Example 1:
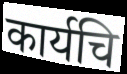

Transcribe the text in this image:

कार्यचि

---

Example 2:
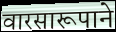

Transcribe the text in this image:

वारसारूपाने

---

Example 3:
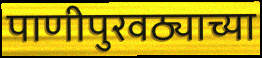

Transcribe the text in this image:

पाणीपुरवठ्याच्या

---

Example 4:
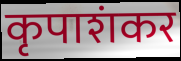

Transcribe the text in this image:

कृपाशंकर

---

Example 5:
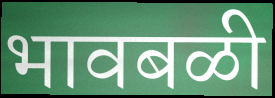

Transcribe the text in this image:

भावबळी